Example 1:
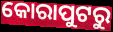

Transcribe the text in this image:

କୋରାପୁଟରୁ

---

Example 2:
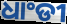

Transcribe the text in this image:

ଧାଂଡୀ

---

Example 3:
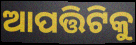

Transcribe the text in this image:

ଆପତ୍ତିଟିକୁ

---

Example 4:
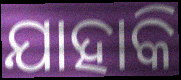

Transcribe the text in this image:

ଯାହାକି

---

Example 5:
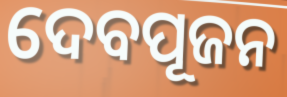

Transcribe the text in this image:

ଦେବପୂଜନ